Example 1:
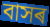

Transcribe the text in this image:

বাসৰ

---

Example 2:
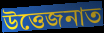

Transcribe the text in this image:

উত্তেজনাত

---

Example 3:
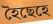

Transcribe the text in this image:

হৈছেহে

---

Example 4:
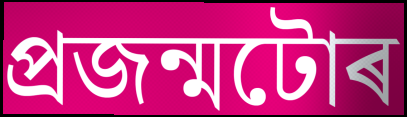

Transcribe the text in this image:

প্ৰজন্মটোৰ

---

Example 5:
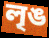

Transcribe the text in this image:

লৃঙ